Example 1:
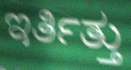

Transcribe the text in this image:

ಇರ್ತಿತ್ತು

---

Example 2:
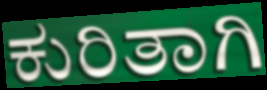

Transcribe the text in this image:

ಕುರಿತಾಗಿ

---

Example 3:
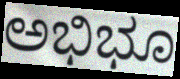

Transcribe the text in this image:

ಅಭಿಭೂ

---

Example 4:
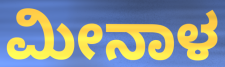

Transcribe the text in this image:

ಮೀನಾಳ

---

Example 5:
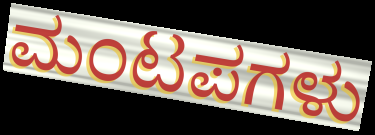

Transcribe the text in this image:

ಮಂಟಪಗಳು